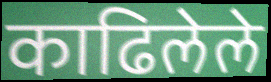
काढिलेले